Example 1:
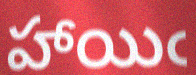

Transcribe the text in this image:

హాయిఁ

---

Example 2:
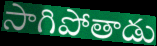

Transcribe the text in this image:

సాగిపోతాడు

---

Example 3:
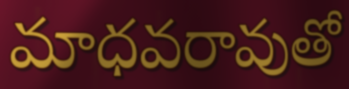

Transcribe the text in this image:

మాధవరావుతో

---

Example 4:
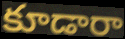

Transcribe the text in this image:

కూడారా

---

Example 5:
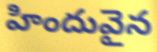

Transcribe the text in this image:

హిందువైన